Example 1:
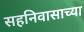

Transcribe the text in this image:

सहनिवासाच्या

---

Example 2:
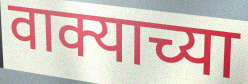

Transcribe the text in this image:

वाक्याच्या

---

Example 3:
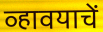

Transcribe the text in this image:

व्हावयाचें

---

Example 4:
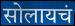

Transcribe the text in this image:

सोलायचं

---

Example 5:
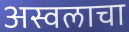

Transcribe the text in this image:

अस्वलाचा